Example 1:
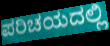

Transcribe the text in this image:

ಪರಿಚಯದಲ್ಲಿ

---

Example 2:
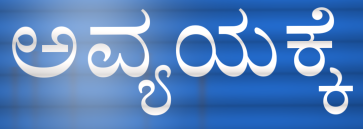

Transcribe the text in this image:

ಅವ್ಯಯಕ್ಕೆ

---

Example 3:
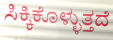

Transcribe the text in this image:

ಸಿಕ್ಕಿಕೊಳ್ಳುತ್ತದೆ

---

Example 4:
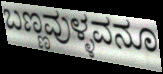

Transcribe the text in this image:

ಬಣ್ಣವುಳ್ಳವನೂ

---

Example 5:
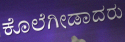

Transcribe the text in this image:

ಕೊಲೆಗೀಡಾದರು